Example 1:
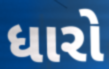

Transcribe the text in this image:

ધારો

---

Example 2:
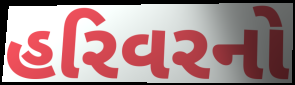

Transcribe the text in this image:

હરિવરનો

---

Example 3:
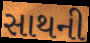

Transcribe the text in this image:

સાથની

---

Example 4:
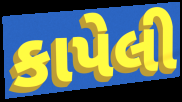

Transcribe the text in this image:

કાપેલી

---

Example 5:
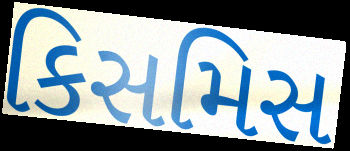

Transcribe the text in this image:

કિસમિસ